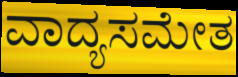
ವಾದ್ಯಸಮೇತ